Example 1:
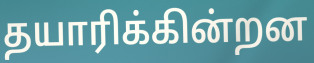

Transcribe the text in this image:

தயாரிக்கின்றன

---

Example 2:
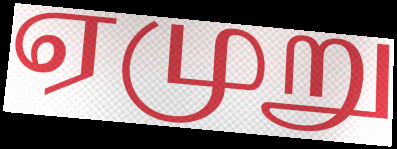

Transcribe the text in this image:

ஏமுறு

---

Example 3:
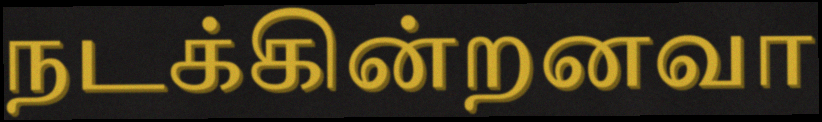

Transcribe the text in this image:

நடக்கின்றனவா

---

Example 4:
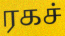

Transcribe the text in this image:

ரகச்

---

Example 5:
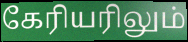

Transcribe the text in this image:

கேரியரிலும்